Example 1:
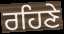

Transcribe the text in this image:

ਰਹਿਣੇ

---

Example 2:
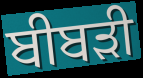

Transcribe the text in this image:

ਬੀਬੜੀ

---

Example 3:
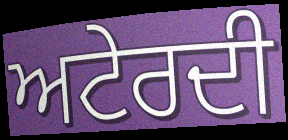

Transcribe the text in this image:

ਅਟੇਰਦੀ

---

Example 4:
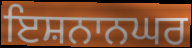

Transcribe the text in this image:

ਇਸ਼ਨਾਨਘਰ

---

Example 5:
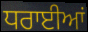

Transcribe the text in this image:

ਧਰਾਈਆਂ